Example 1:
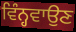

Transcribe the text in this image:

ਵਿੰਨ੍ਹਵਾਉਣ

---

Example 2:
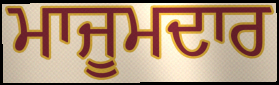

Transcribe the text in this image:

ਮਾਜੂਮਦਾਰ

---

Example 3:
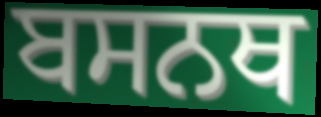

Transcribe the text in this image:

ਬਸਨਥ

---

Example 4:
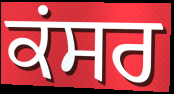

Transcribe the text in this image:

ਕਂਸਰ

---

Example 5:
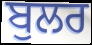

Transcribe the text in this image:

ਬੁਲਰ